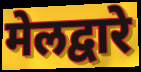
मेलद्वारे